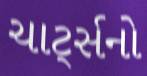
ચાર્ટ્સનો